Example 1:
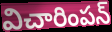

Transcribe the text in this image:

విచారింపన్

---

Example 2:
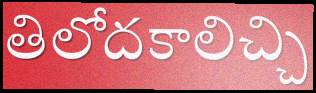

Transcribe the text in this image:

తిలోదకాలిచ్చి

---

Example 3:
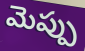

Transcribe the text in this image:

మెప్పు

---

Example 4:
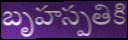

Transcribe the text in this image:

బృహస్పతికి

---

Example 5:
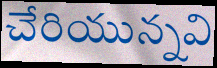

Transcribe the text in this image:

చేరియున్నవి